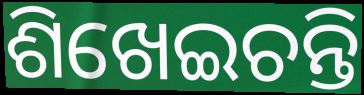
ଶିଖେଇଚନ୍ତି